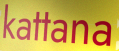
kattana